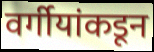
वर्गीयांकडून